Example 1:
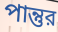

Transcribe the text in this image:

পান্তুর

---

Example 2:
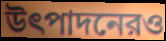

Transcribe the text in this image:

উৎপাদনেরও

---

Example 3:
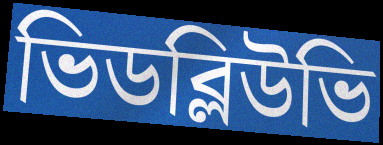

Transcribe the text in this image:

ভিডব্লিউভি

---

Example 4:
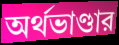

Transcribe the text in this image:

অর্থভাণ্ডার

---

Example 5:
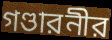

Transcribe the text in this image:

গণ্ডারনীর